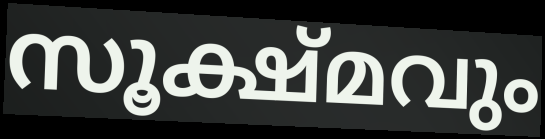
സൂക്ഷ്മവും